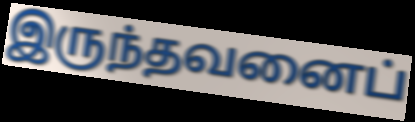
இருந்தவனைப்